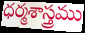
ధర్మశాస్త్రము